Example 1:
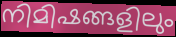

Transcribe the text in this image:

നിമിഷങ്ങളിലും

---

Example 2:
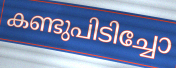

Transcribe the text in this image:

കണ്ടുപിടിച്ചോ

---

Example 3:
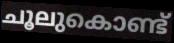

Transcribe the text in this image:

ചൂലുകൊണ്ട്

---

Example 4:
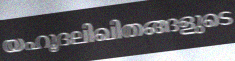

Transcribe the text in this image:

യഹൂദലിഖിതങ്ങളുടെ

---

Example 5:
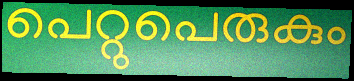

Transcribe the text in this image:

പെറ്റുപെരുകും